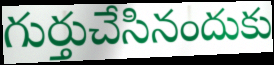
గుర్తుచేసినందుకు